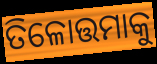
ତିଳୋତ୍ତମାକୁ